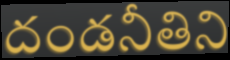
దండనీతిని